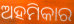
ଅହମିକାର